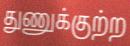
துணுக்குற்ற